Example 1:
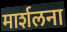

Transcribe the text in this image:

मार्शलना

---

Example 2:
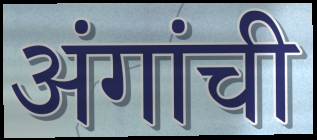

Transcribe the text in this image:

अंगांची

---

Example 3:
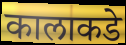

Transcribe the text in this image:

कालाकडे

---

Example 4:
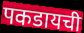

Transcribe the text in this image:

पकडायची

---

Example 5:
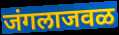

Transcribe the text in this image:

जंगलाजवळ